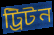
ট্রিটন